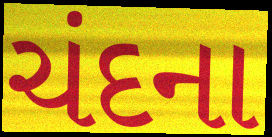
ચંદના